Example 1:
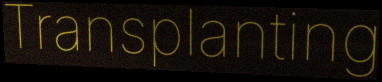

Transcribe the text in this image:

Transplanting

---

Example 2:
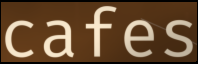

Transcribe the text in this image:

cafes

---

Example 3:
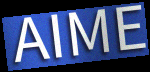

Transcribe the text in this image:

AIME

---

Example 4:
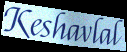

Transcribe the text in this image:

Keshavlal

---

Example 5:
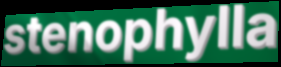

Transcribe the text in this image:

stenophylla